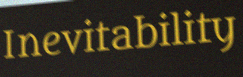
Inevitability